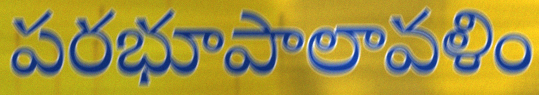
పరభూపాలావళిం